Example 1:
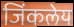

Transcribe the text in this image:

जिंकलेय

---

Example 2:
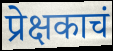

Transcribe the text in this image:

प्रेक्षकाचं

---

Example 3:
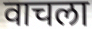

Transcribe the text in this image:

वाचला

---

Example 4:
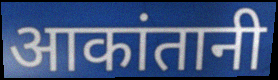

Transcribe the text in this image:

आकांतानी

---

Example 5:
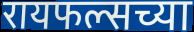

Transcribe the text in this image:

रायफल्सच्या